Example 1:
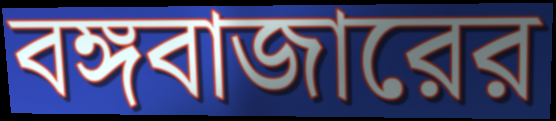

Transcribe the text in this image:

বঙ্গবাজারের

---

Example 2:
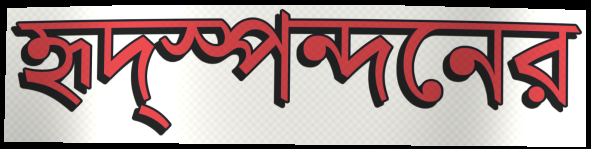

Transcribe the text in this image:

হৃদ্স্পন্দনের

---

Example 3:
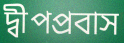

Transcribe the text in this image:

দ্বীপপ্রবাস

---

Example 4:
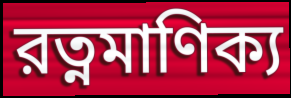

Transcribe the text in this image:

রত্নমাণিক্য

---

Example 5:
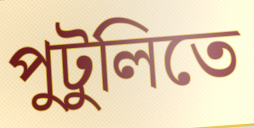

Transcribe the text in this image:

পুটুলিতে